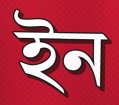
ইন